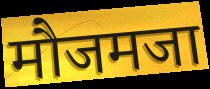
मौजमजा